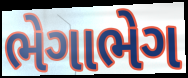
ભેગાભેગ